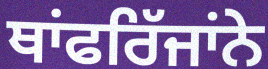
ਥਾਂਫਰਿੱਜਾਂਨੇ